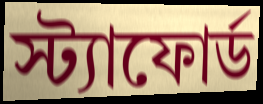
স্ট্যাফোর্ড